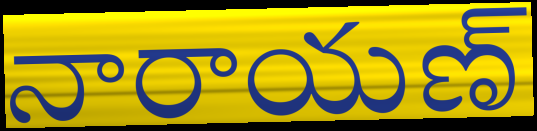
నారాయణ్